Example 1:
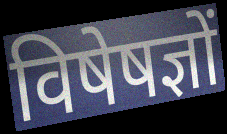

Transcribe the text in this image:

विषेषज्ञों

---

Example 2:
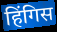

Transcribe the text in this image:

हिंगिस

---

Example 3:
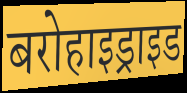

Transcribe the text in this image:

बरोहाइड्राइड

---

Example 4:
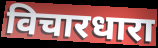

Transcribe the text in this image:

विचारधारा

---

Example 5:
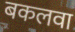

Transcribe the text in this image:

बकलवा